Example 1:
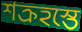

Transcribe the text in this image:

শক্রহস্তে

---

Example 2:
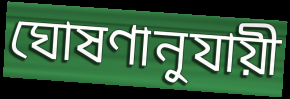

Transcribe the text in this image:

ঘোষণানুযায়ী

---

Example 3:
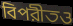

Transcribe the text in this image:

বিপরীতও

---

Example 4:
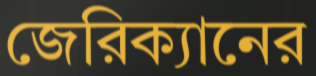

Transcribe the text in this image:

জেরিক্যানের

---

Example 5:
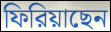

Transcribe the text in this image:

ফিরিয়াছেন